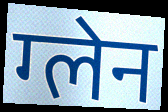
ग्लेन